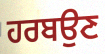
ਹਰਬਉਣ